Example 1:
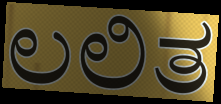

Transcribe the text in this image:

ಲಲಿತ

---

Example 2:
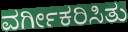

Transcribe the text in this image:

ವರ್ಗೀಕರಿಸಿತು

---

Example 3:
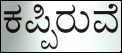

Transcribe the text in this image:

ಕಪ್ಪಿರುವೆ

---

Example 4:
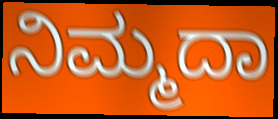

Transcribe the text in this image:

ನಿಮ್ಮದಾ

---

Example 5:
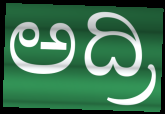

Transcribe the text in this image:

ಅದ್ರಿ